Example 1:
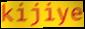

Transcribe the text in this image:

kijiye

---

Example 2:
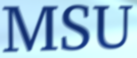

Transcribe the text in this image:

MSU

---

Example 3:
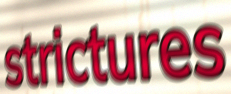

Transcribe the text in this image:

strictures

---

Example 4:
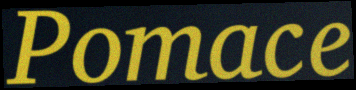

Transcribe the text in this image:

Pomace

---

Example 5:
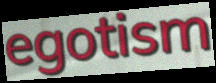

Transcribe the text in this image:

egotism